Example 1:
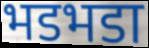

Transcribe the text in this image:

भडभडा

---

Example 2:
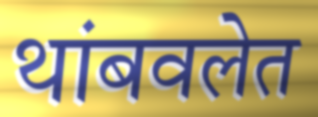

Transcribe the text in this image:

थांबवलेत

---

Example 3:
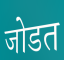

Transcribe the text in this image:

जोडत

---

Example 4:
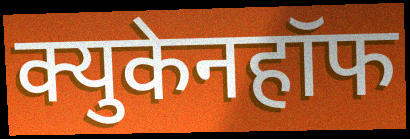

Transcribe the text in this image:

क्युकेनहॉफ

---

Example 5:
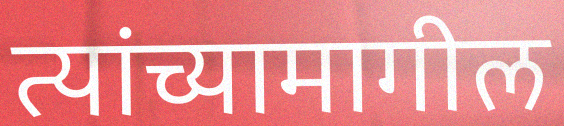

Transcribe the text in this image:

त्यांच्यामागील